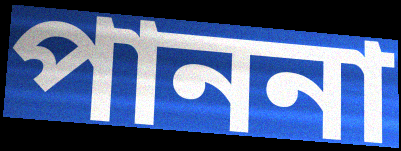
পাননা